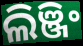
ଲିଞ୍ଜିଂ